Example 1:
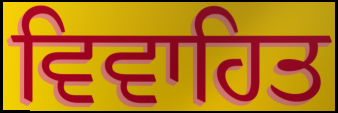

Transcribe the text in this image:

ਵਿਵਾਹਿਤ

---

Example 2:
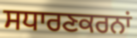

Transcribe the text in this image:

ਸਧਾਰਣਕਰਨਾਂ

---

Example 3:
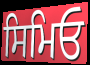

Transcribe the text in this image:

ਸਿਮਿਓ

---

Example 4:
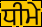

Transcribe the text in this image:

ਧੀਮੇ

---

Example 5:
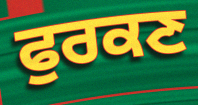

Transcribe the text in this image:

ਫੁਰਕਣ